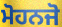
ਮੋਹਨਜੋ